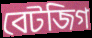
বেটজিগ